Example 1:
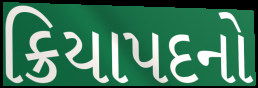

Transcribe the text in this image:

ક્રિયાપદનો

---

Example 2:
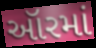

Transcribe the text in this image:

ઑરમાં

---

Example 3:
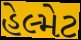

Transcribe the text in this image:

હેલ્મેટ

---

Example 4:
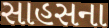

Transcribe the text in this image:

સાહસના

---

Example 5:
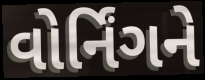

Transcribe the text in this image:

વોર્નિંગને